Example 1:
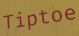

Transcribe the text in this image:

Tiptoe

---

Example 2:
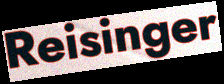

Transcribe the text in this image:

Reisinger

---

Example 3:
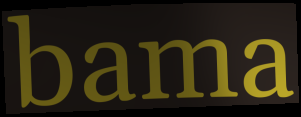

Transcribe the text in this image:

bama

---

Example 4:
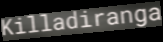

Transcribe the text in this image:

Killadiranga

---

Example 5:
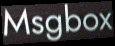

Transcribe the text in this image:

Msgbox